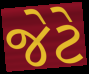
જેટે